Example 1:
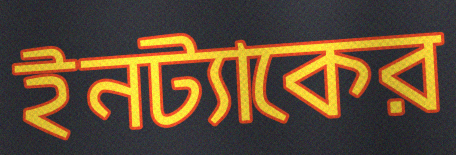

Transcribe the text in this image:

ইনট্যাকের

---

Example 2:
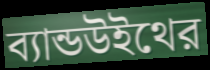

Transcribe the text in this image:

ব্যান্ডউইথের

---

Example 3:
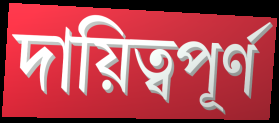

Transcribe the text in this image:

দায়িত্বপূর্ণ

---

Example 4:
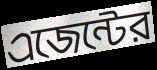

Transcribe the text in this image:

এজেন্টের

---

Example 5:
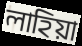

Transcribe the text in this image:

লাহিয়া